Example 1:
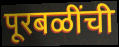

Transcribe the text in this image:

पूरबळींची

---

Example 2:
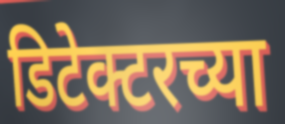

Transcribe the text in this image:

डिटेक्टरच्या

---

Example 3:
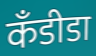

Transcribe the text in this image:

कॅंडीडा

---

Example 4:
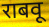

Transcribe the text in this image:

राबवू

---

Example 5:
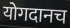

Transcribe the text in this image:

योगदानच